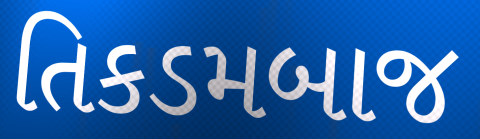
તિકડમબાજ